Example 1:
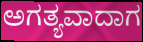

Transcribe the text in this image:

ಅಗತ್ಯವಾದಾಗ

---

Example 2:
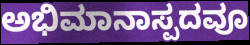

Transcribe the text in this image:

ಅಭಿಮಾನಾಸ್ಪದವೂ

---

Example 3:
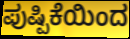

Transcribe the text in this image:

ಪುಷ್ಪಿಕೆಯಿಂದ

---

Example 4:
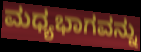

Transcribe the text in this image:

ಮಧ್ಯಭಾಗವನ್ನು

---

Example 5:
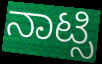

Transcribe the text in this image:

ನಾಟ್ಸಿ